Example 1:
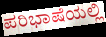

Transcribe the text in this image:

ಪರಿಭಾಷೆಯಲ್ಲಿ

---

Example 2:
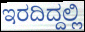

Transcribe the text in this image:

ಇರದಿದ್ದಲ್ಲಿ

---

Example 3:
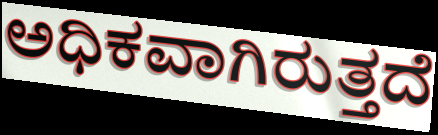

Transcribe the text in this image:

ಅಧಿಕವಾಗಿರುತ್ತದೆ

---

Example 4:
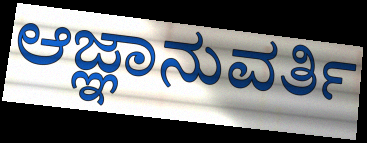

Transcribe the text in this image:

ಆಜ್ಞಾನುವರ್ತಿ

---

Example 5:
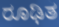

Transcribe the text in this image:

ರೂಢಿತ